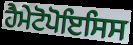
ਹੈਮੇਟੋਪੋਇਸਿਸ